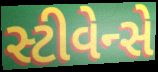
સ્ટીવેન્સે